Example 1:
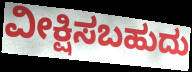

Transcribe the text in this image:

ವೀಕ್ಷಿಸಬಹುದು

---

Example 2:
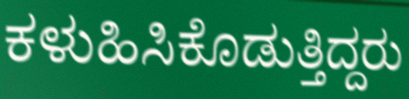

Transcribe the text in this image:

ಕಳುಹಿಸಿಕೊಡುತ್ತಿದ್ದರು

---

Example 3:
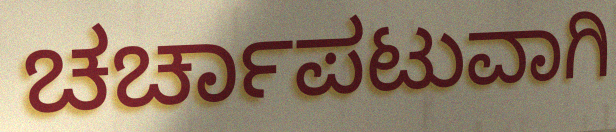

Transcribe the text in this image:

ಚರ್ಚಾಪಟುವಾಗಿ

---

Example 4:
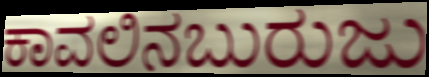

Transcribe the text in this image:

ಕಾವಲಿನಬುರುಜು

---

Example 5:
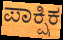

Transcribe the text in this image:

ಪಾಕ್ಷಿಕ